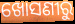
ଖୋସଣୀରୁ